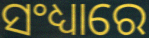
ସଂଧ୍ୟାରେ